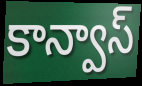
కాన్వాస్